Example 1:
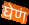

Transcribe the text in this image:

घेणं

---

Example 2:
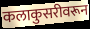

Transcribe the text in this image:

कलाकुसरीवरून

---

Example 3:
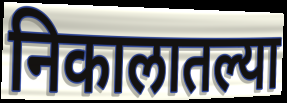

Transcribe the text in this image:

निकालातल्या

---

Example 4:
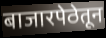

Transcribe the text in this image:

बाजारपेठेतून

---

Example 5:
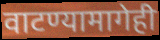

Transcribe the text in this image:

वाटण्यामागेही